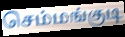
செம்மங்குடி